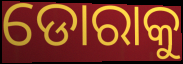
ଡୋରାକୁ